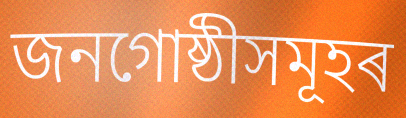
জনগোষ্ঠীসমূহৰ